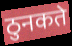
ठुनकते